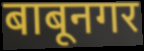
बाबूनगर